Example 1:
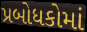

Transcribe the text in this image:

પ્રબોધકોમાં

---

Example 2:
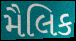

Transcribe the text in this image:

મૈલિક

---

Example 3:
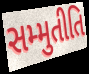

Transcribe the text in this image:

સમ્મુતીતિ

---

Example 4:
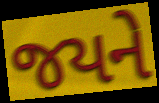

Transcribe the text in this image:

જયને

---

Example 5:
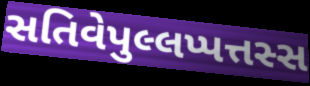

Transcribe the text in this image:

સતિવેપુલ્લપ્પત્તસ્સ